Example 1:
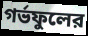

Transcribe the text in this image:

গর্ভফুলের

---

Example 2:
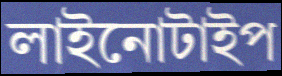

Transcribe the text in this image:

লাইনোটাইপ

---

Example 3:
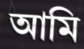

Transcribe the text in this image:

আমি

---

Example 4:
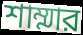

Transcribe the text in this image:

শাম্মার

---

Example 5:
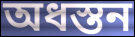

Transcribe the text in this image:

অধস্তন